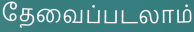
தேவைப்படலாம்